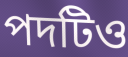
পদটিও